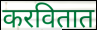
करवितात